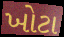
ખોટા